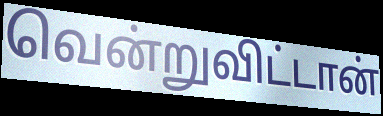
வென்றுவிட்டான்